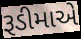
રૂડીમાએ